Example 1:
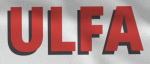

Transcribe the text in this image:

ULFA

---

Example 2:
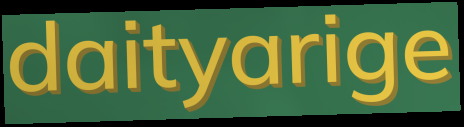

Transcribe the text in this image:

daityarige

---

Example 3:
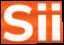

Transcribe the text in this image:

Sii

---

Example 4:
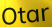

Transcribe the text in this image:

Otar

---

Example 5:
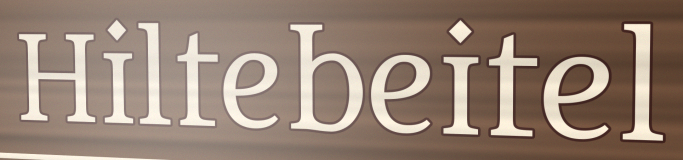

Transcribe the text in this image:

Hiltebeitel